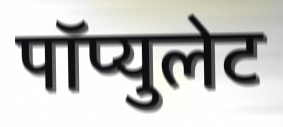
पॉप्युलेट